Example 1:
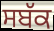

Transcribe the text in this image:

ਸਬੱਕ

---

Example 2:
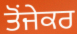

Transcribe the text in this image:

ਤੋਂਜੇਕਰ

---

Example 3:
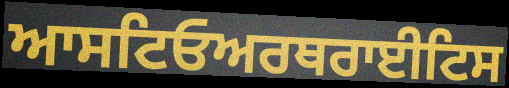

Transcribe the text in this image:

ਆਸਟਿਓਅਰਥਰਾਈਟਿਸ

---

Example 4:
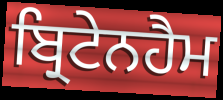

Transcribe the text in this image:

ਬ੍ਰਿਟੇਨਹੈਮ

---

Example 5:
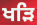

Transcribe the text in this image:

ਖੜਿ